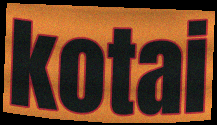
kotai